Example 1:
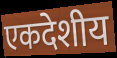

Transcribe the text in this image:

एकदेशीय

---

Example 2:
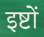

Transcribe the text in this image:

इष्टों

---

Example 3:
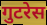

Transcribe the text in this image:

गुटरेस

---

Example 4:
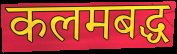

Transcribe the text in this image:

कलमबद्ध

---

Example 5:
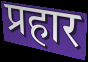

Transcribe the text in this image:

प्रहार